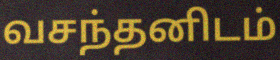
வசந்தனிடம்